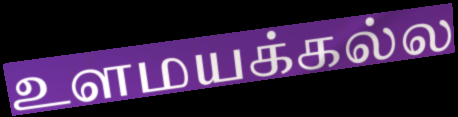
உளமயக்கல்ல